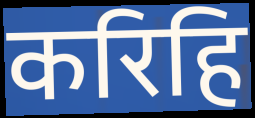
करिहि